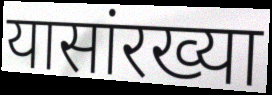
यासांरख्या